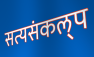
सत्यसंकल्प